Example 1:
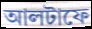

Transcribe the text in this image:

আলটাফে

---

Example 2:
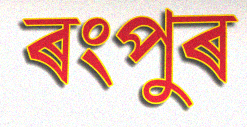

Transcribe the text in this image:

ৰংপুৰ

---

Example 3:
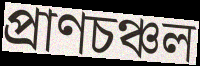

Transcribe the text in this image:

প্ৰাণচঞ্চল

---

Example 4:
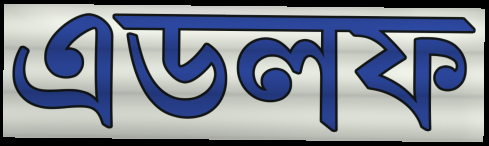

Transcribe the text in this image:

এডলফ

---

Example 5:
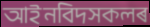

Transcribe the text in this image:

আইনবিদসকলৰ